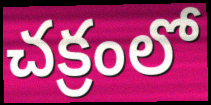
చక్రంలో